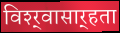
विश्र्वासार्हता